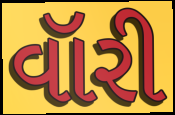
વૉરી